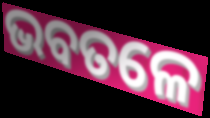
ଭବତଳେ